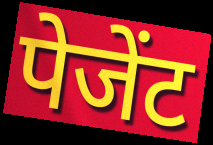
पेजेंट